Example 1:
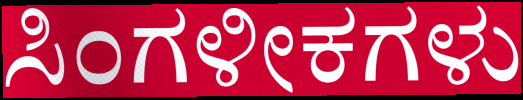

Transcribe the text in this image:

ಸಿಂಗಳೀಕಗಳು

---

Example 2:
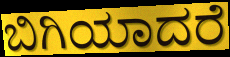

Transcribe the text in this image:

ಬಿಗಿಯಾದರೆ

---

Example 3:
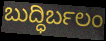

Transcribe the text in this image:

ಬುದ್ಧಿರ್ಬಲಂ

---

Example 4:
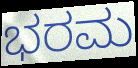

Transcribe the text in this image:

ಭರಮ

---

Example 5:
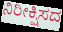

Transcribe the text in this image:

ನಿರೀಕ್ಷಿಸದ